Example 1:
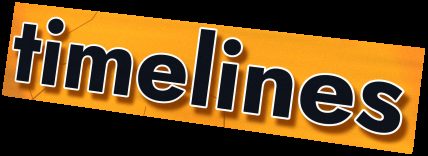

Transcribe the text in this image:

timelines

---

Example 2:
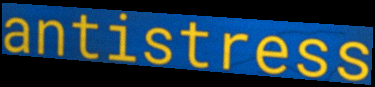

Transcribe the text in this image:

antistress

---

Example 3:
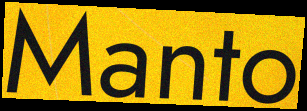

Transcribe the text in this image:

Manto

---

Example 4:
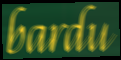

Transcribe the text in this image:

bardu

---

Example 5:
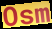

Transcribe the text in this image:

Osm